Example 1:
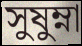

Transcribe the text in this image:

সুষুম্না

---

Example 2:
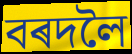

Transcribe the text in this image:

বৰদলৈ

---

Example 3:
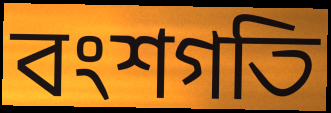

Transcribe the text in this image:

বংশগতি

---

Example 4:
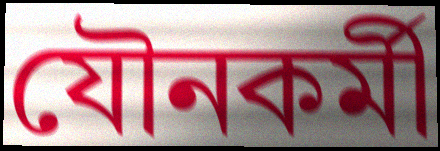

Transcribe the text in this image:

যৌনকৰ্মী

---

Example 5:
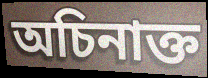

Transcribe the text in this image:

অচিনাক্ত